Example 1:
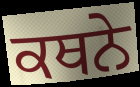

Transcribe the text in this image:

ਕਥਨੇ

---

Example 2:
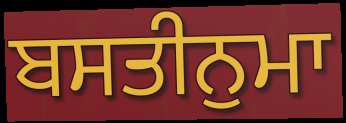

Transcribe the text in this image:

ਬਸਤੀਨੁਮਾ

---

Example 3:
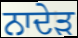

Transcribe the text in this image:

ਨਾਦੇੜ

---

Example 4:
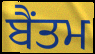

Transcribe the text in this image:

ਬੈਂਤਮ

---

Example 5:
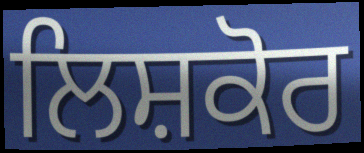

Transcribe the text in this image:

ਲਿਸ਼ਕੋਰ